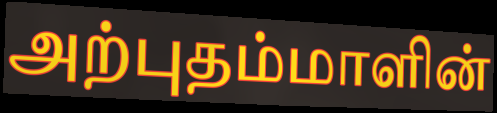
அற்புதம்மாளின்